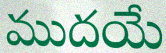
ముదయే